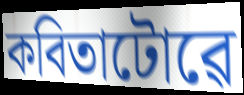
কবিতাটোৱে